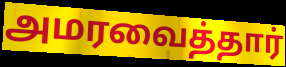
அமரவைத்தார்